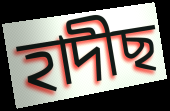
হাদীছ